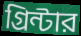
গ্রিন্টার